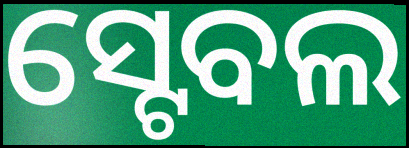
ସ୍ଟେବଲ